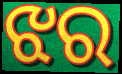
ଝର